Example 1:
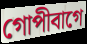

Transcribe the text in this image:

গোপীবাগে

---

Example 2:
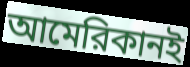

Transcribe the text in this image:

আমেরিকানই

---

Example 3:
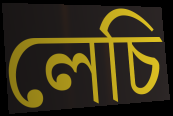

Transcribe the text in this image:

লেচি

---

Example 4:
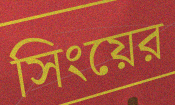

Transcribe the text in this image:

সিংয়ের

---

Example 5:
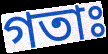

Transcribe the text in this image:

গতাঃ